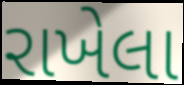
રાખેલા